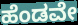
ಹೆಂಡವೇ